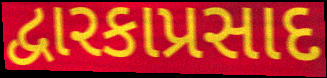
દ્વારકાપ્રસાદ